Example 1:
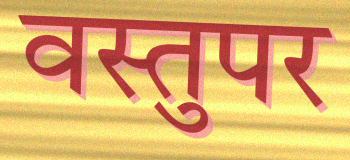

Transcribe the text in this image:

वस्तुपर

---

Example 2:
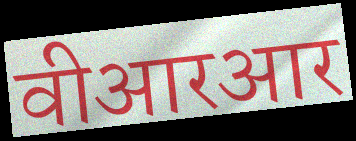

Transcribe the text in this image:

वीआरआर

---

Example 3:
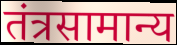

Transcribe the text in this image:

तंत्रसामान्य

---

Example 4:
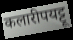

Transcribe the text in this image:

कलारीपयट्टू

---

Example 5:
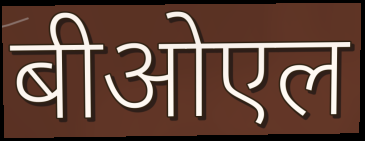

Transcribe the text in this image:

बीओएल